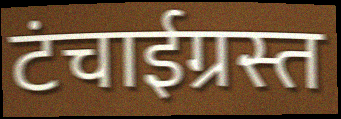
टंचाईग्रस्त